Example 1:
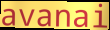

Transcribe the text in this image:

avanai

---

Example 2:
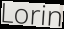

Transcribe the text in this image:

Lorin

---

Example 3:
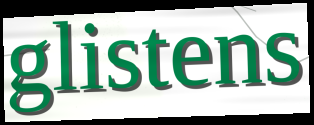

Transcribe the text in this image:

glistens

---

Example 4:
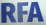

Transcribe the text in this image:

RFA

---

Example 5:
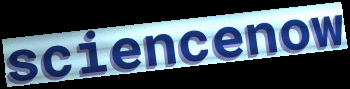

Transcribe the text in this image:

sciencenow